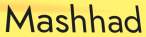
Mashhad